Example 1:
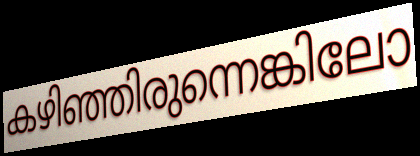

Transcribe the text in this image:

കഴിഞ്ഞിരുന്നെങ്കിലോ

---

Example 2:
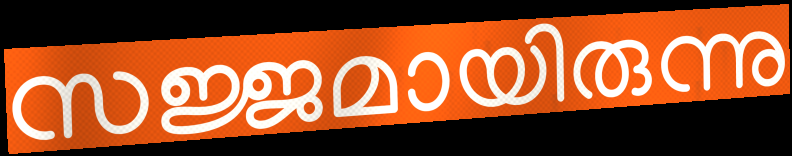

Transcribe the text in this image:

സജ്ജമായിരുന്നു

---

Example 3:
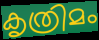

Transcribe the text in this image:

കൃത്രിമം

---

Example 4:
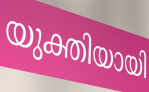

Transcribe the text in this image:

യുക്തിയായി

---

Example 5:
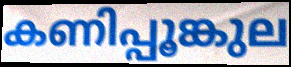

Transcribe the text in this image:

കണിപ്പൂങ്കുല